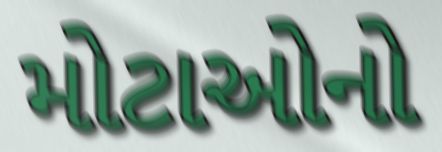
મોટાઓનો